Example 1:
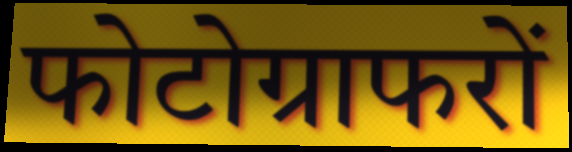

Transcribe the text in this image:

फोटोग्राफरों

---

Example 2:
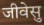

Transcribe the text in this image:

जीवेसु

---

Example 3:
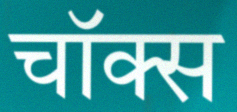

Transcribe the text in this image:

चॉक्स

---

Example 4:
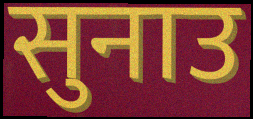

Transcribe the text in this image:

सुनाउ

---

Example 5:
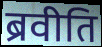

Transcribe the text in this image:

ब्रवीति